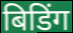
बिडिंग